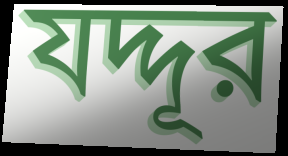
যদ্দূর